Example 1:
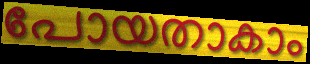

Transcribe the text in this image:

പോയതാകാം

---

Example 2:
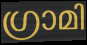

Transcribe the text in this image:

ഗ്രാമി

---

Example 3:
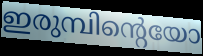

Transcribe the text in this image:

ഇരുമ്പിന്റെയോ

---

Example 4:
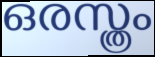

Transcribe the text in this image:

ഒരസ്ത്രം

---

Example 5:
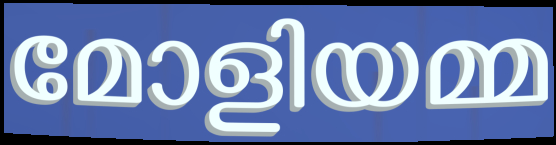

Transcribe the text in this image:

മോളിയമ്മ